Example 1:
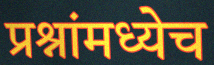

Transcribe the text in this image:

प्रश्नांमध्येच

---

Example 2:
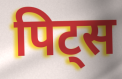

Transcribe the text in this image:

पिट्स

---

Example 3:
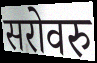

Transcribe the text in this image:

सरोवरु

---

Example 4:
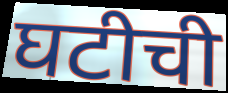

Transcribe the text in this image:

घटीची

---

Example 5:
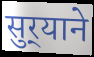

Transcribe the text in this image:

सुर्याने